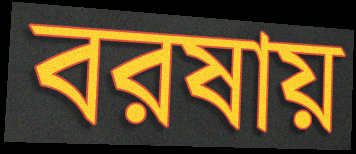
বরষায়